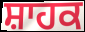
ਸ਼ਾਹਕ